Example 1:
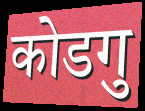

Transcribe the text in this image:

कोडगु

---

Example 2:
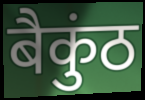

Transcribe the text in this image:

बैकुंठ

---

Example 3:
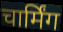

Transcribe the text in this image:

चार्मिंग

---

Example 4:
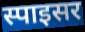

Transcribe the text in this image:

स्पाइसर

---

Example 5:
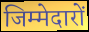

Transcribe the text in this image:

जिम्मेदारों